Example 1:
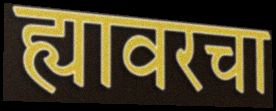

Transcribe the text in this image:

ह्यावरचा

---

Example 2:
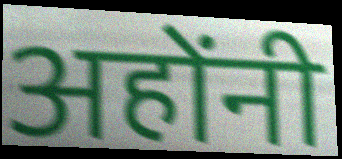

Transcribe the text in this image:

अहोंनी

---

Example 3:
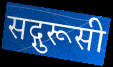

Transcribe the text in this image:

सद्गुरूसी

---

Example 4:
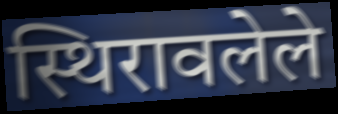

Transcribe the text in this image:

स्थिरावलेले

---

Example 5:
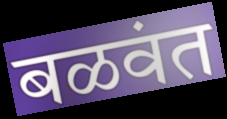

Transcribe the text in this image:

बळवंत